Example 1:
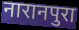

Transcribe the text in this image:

नारानपुरा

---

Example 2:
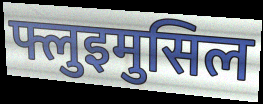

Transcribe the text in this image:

फ्लुइमुसिल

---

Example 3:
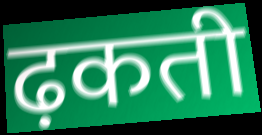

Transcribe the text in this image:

ढ़कती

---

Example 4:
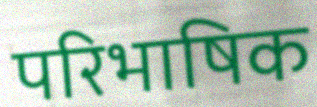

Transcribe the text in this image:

परिभाषिक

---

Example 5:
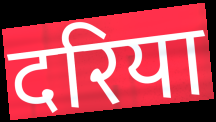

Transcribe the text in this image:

दरिया